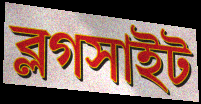
ব্লগসাইট